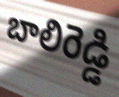
బాలిరెడ్డి